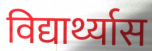
विद्यार्थ्यास